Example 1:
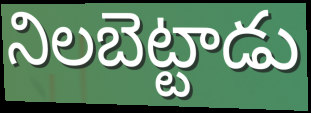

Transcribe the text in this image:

నిలబెట్టాడు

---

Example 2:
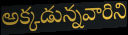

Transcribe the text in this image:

అక్కడున్నవారిని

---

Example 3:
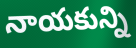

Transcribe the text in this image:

నాయకున్ని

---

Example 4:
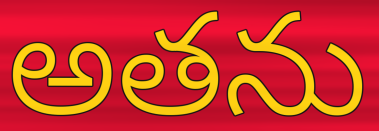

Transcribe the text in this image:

అతను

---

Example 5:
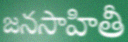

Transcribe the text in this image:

జనసాహితీ